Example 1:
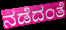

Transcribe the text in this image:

ನಡೆದಂತೆ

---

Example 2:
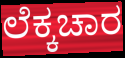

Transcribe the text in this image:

ಲೆಕ್ಕಚಾರ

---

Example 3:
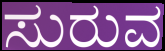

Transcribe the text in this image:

ಸುರುವ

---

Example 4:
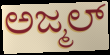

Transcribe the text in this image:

ಅಜ್ಮಲ್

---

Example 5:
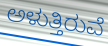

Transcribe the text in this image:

ಅಳುತ್ತಿರುವೆ